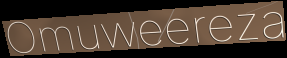
Omuweereza